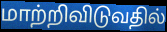
மாற்றிவிடுவதில்